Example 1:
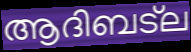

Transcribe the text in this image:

ആദിബട്ല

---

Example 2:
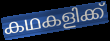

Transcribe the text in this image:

കഥകളിക്ക്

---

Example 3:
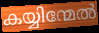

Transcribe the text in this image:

കയ്യിന്മേൽ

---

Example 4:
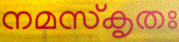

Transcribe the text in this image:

നമസ്കൃതഃ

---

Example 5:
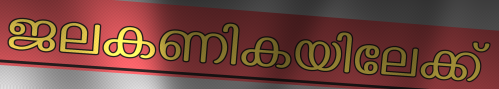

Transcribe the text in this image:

ജലകണികയിലേക്ക്